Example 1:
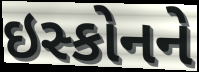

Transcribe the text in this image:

ઇસ્કોનને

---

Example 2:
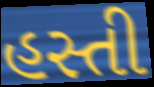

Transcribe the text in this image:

હસ્તી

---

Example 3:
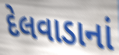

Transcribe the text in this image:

દેલવાડાનાં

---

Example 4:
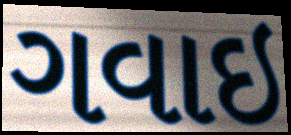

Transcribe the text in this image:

ગવાઇ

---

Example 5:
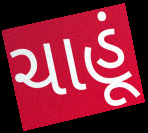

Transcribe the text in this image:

ચાહૂં